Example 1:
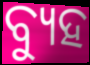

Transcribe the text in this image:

ବ୍ୟୁହ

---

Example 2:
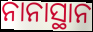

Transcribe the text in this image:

ନାନାସ୍ଥାନ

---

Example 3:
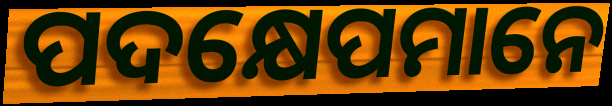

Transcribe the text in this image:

ପଦକ୍ଷେପମାନେ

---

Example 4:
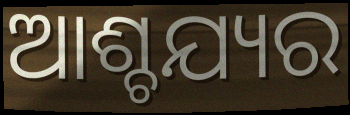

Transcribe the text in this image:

ଆଶ୍ଚଯ୍ୟର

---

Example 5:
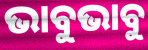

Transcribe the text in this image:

ଭାବୁଭାବୁ